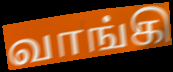
வாங்கி